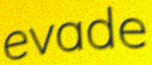
evade